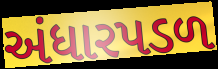
અંધારપડળ